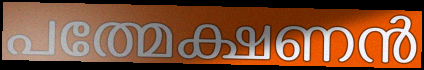
പത്മേക്ഷണൻ